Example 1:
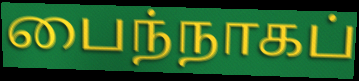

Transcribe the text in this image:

பைந்நாகப்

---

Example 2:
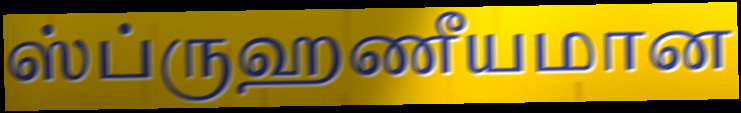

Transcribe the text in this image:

ஸ்ப்ருஹணீயமான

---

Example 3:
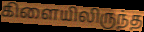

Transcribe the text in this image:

கிளையிலிருந்த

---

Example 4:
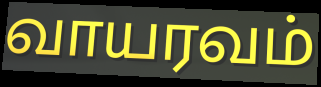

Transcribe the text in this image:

வாயரவம்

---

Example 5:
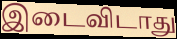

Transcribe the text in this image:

இடைவிடாது